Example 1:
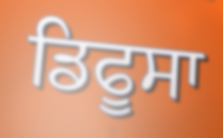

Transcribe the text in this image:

ਡਿਫੂਸਾ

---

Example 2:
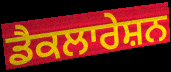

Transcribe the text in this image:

ਡੈਕਲਾਰੇਸ਼ਨ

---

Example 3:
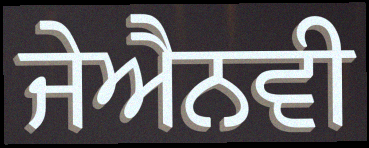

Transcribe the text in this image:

ਜੇਐਨਵੀ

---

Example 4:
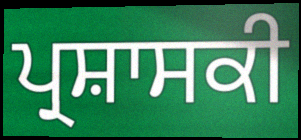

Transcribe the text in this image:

ਪ੍ਰਸ਼ਾਸਕੀ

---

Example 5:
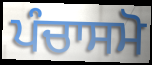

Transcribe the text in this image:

ਪੰਚਾਸਮੋ